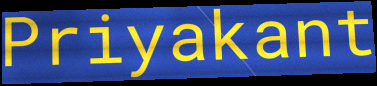
Priyakant